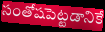
సంతోషపెట్టడానికే